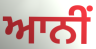
ਆਨੀਂ